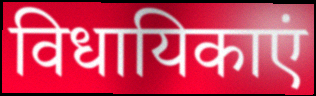
विधायिकाएं